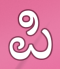
ಪಿ